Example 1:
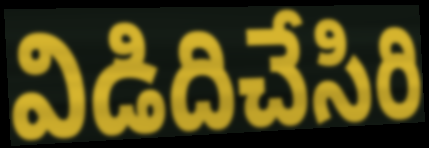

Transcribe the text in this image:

విడిదిచేసిరి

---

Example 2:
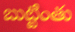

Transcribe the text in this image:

బుట్టింతు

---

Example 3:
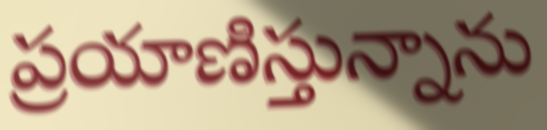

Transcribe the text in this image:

ప్రయాణిస్తున్నాను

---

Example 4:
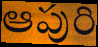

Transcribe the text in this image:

ఆపురి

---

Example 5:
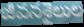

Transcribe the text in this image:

జీవనశైలుల